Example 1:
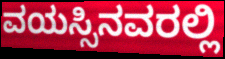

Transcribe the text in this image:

ವಯಸ್ಸಿನವರಲ್ಲಿ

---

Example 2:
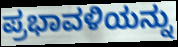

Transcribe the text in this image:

ಪ್ರಭಾವಳಿಯನ್ನು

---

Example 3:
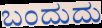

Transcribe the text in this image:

ಬಂದುದು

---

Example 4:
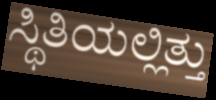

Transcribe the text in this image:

ಸ್ಥಿತಿಯಲ್ಲಿತ್ತು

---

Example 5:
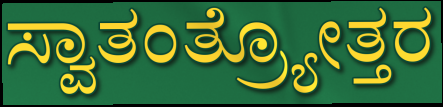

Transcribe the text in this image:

ಸ್ವಾತಂತ್ರ್ಯೋತ್ತರ